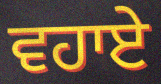
ਵਹਾਏ